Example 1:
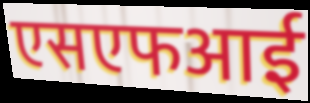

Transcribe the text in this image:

एसएफआई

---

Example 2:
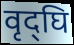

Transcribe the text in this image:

वृद्घि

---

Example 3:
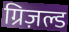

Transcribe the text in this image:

ग्रिज़ल्ड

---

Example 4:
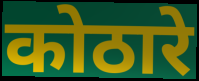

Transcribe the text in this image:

कोठारे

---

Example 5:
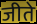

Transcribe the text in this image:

जीते